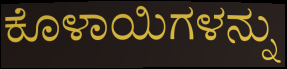
ಕೊಳಾಯಿಗಳನ್ನು